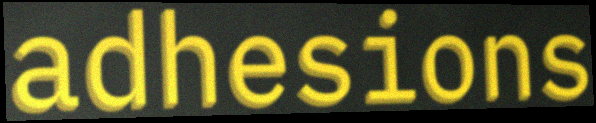
adhesions